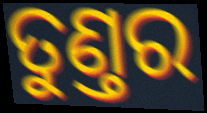
ତୁଣ୍ତର